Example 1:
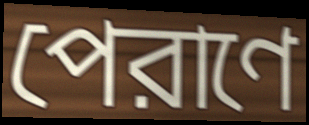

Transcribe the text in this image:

পেরাণে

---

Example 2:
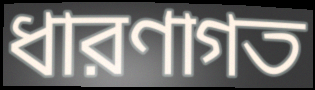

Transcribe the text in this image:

ধারণাগত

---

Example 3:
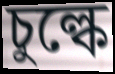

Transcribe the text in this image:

চুল্কে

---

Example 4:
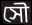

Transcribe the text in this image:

সৌ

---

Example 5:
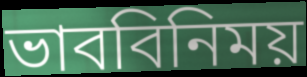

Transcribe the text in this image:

ভাববিনিময়